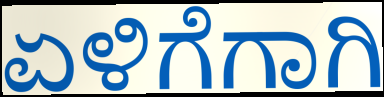
ಏಳಿಗೆಗಾಗಿ